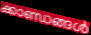
ക്കാണ്ഡങ്ങൾ